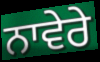
ਨਾਵੇਰੇ